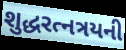
શુદ્ધરત્નત્રયની